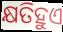
କ୍ଷତିହୁଏ